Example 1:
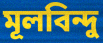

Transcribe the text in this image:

মূলবিন্দু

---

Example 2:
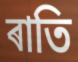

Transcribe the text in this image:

ৰাতি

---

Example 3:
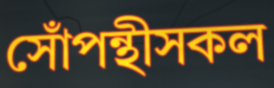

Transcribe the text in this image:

সোঁপন্থীসকল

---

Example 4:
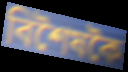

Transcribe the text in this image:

বিশৈষকৈ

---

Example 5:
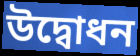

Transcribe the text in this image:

উদ্বোধন